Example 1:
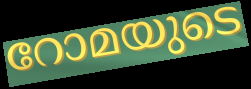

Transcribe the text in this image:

റോമയുടെ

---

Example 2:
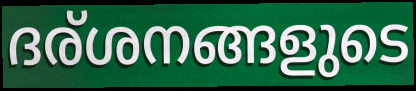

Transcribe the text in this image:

ദര്ശനങ്ങളുടെ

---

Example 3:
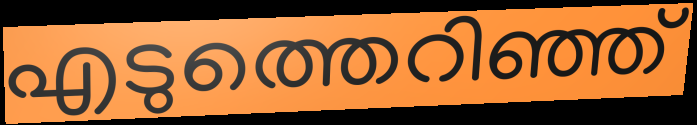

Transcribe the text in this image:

എടുത്തെറിഞ്ഞ്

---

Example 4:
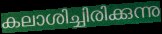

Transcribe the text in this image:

കലാശിച്ചിരിക്കുന്നു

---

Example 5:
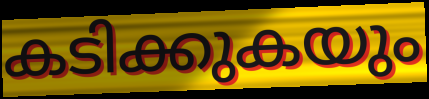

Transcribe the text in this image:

കടിക്കുകയും